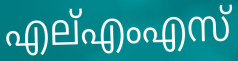
എല്എംഎസ്